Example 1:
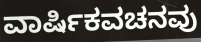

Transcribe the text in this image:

ವಾರ್ಷಿಕವಚನವು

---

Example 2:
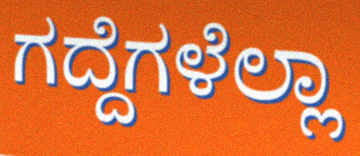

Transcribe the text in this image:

ಗದ್ದೆಗಳೆಲ್ಲಾ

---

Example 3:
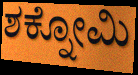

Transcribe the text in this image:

ಶಕ್ನೋಮಿ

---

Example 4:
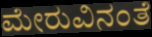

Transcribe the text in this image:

ಮೇರುವಿನಂತೆ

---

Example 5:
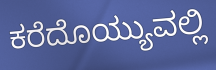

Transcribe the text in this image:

ಕರೆದೊಯ್ಯುವಲ್ಲಿ